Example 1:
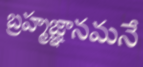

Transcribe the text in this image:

బ్రహ్మజ్ఞానమనే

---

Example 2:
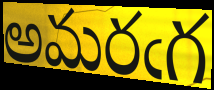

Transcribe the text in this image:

అమరఁగ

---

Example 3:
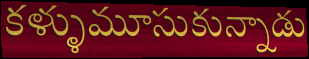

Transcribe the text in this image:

కళ్ళుమూసుకున్నాడు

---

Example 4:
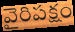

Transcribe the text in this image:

వైరిపక్షం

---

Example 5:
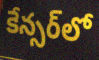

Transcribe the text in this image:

కేన్సర్‌లో